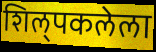
शिल्पकलेला